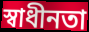
স্বাধীনতা